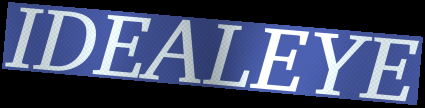
IDEALEYE